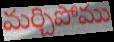
మర్చిపోము